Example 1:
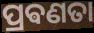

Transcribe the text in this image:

ପ୍ରଵଣତା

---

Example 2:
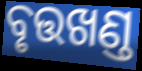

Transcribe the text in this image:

ବୃତ୍ତଖଣ୍ଡ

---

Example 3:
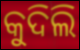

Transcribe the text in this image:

କୁଦିଲି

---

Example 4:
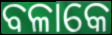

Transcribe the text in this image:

ବଳାକେ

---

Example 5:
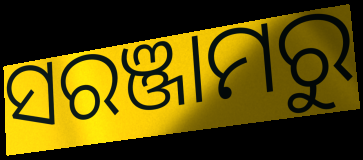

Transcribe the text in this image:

ସରଞ୍ଜାମରୁ